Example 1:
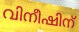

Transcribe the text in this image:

വിനീഷിന്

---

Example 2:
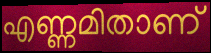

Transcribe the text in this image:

എണ്ണമിതാണ്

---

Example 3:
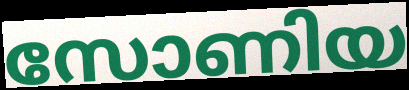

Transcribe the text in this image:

സോണിയ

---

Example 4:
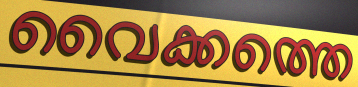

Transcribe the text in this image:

വൈക്കത്തെ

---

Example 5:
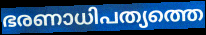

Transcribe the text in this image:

ഭരണാധിപത്യത്തെ